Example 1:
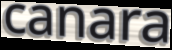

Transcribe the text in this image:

canara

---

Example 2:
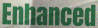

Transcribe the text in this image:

Enhanced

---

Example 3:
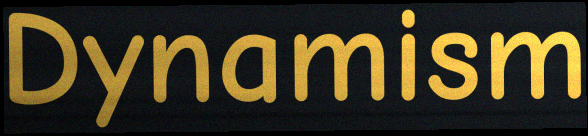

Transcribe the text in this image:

Dynamism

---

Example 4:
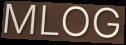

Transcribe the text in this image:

MLOG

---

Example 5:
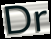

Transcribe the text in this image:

Dr